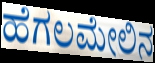
ಹೆಗಲಮೇಲಿನ